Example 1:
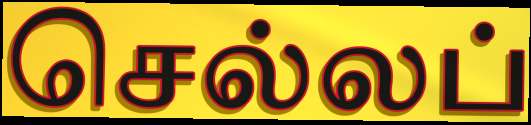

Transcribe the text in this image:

செல்லப்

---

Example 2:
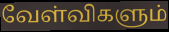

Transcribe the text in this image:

வேள்விகளும்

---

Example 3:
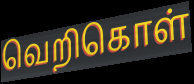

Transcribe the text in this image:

வெறிகொள்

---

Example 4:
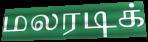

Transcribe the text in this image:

மலரடிக்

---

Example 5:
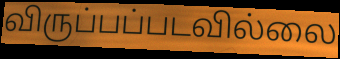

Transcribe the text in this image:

விருப்பப்படவில்லை